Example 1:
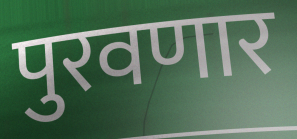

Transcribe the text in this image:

पुरवणार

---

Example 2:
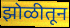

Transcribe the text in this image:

झोळीतून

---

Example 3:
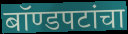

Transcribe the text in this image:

बॉण्डपटांचा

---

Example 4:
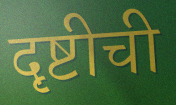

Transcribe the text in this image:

दृष्टीची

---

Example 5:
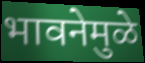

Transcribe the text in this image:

भावनेमुळे